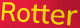
Rotter